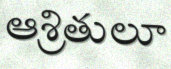
ఆశ్రితులూ